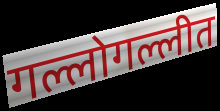
गल्लोगल्लीत